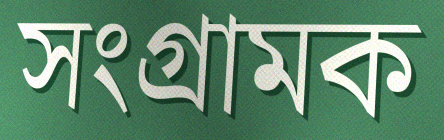
সংগ্ৰামক